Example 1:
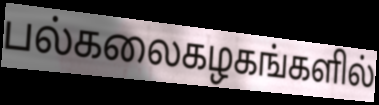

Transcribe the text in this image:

பல்கலைகழகங்களில்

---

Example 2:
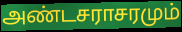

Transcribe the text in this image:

அண்டசராசரமும்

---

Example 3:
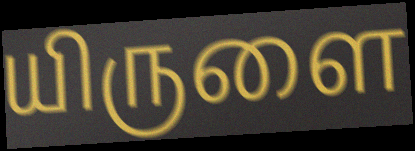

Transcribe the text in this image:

யிருளை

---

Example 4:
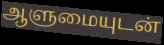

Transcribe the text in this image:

ஆளுமையுடன்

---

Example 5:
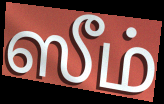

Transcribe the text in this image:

ஸீம்